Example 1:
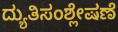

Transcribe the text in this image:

ದ್ಯುತಿಸಂಶ್ಲೇಷಣೆ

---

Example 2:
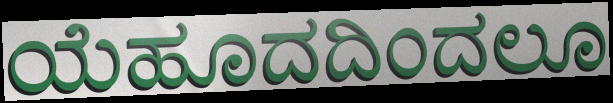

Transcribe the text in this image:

ಯೆಹೂದದಿಂದಲೂ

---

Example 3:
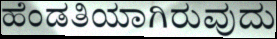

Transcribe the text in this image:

ಹೆಂಡತಿಯಾಗಿರುವುದು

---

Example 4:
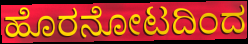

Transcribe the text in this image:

ಹೊರನೋಟದಿಂದ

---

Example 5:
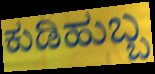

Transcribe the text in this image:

ಕುಡಿಹುಬ್ಬ